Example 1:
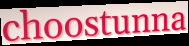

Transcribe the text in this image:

choostunna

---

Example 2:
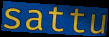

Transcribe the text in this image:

sattu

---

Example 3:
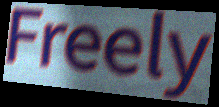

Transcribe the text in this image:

Freely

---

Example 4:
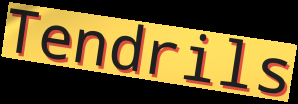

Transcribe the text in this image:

Tendrils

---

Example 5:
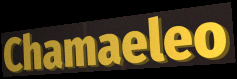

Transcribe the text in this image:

Chamaeleo